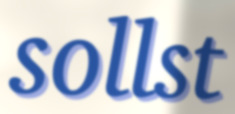
sollst